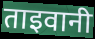
ताइवानी